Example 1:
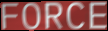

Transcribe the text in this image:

FORCE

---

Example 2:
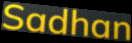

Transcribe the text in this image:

Sadhan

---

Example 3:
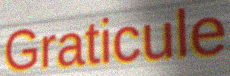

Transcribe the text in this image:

Graticule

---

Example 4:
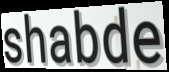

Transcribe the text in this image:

shabde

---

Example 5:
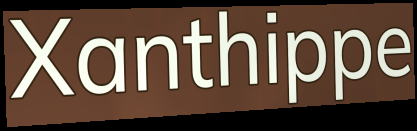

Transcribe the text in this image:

Xanthippe